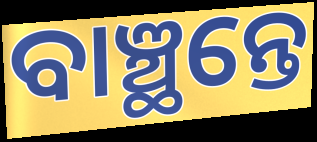
ବାଞ୍ଛନ୍ତେ